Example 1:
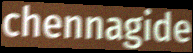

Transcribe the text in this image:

chennagide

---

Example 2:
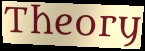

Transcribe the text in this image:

Theory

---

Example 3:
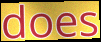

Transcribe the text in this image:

does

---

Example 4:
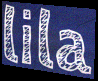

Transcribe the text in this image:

lila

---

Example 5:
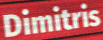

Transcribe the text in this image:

Dimitris